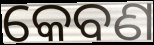
କେବଣ